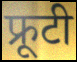
फ्रूटी